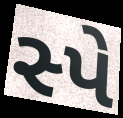
સ્પે